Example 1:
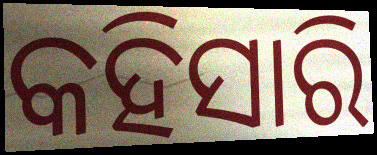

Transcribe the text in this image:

କହିସାରି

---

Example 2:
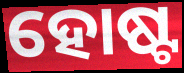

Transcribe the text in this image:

ହୋଷ୍ଟ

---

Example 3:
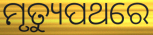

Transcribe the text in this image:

ମୃତ୍ୟୁପଥରେ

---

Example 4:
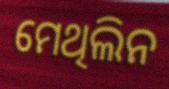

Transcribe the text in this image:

ମେଥିଲିନ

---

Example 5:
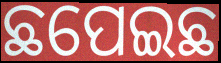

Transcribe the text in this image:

ଛପେଇଛ